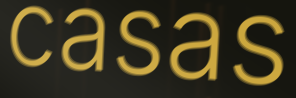
casas